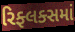
રિફ્લક્સમાં